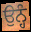
ਉਨ੍ਹੰ